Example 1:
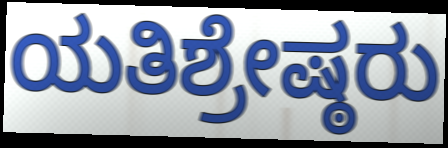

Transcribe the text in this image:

ಯತಿಶ್ರೇಷ್ಠರು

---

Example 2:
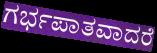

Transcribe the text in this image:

ಗರ್ಭಪಾತವಾದರೆ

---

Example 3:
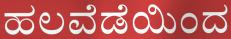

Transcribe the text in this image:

ಹಲವೆಡೆಯಿಂದ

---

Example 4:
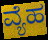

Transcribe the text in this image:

ವ್ಯೆಹ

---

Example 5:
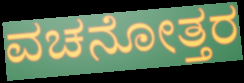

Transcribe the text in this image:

ವಚನೋತ್ತರ